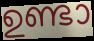
ഉണ്ടാ